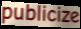
publicize